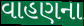
વાહણના